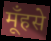
मूँहसे